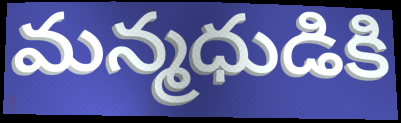
మన్మధుడికి